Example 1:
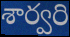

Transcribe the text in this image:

శార్వరి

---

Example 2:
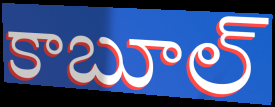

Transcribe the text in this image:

కాబూల్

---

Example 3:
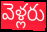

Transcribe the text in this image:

వెళ్లరు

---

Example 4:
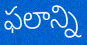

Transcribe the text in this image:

ఫలాన్ని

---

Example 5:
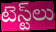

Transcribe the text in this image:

టెస్ట్‌లు